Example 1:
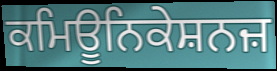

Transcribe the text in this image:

ਕਮਿਊਨਿਕੇਸ਼ਨਜ਼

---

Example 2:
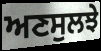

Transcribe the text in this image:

ਅਣਸੁਲਝੇ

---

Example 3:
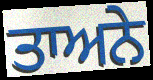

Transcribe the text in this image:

ਤਾਅਨੇ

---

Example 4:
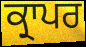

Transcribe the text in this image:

ਕ੍ਰਾਪਰ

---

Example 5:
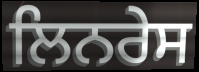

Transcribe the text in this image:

ਲਿਨਰੇਸ